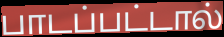
பாடப்பட்டால்